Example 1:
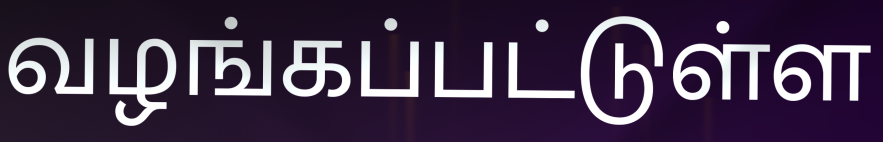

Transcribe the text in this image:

வழங்கப்பட்டுள்ள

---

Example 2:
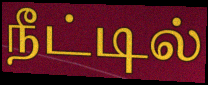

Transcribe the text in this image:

நீட்டில்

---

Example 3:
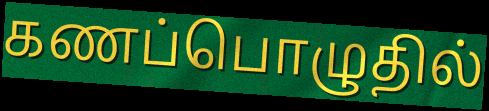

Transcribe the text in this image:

கணப்பொழுதில்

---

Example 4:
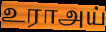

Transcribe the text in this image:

உராஅய்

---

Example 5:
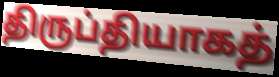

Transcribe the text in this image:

திருப்தியாகத்